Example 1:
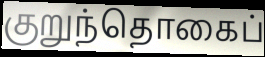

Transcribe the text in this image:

குறுந்தொகைப்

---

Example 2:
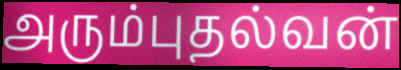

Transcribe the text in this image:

அரும்புதல்வன்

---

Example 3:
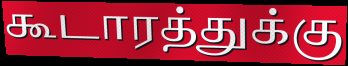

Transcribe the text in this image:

கூடாரத்துக்கு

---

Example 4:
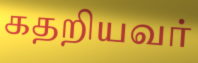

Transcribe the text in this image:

கதறியவர்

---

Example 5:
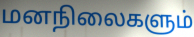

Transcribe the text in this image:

மனநிலைகளும்